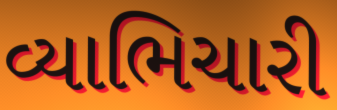
વ્યાભિચારી